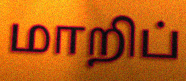
மாறிப்